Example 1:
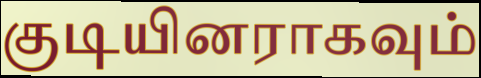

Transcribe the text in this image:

குடியினராகவும்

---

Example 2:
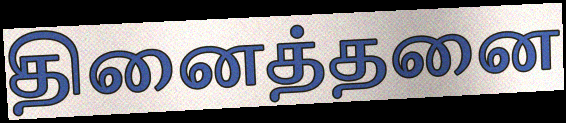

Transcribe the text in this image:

தினைத்தனை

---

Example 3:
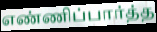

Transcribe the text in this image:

எண்ணிப்பார்த்த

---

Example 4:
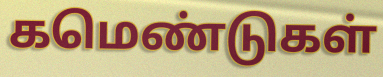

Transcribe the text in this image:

கமெண்டுகள்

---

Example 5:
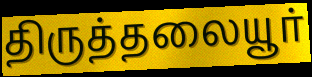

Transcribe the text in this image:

திருத்தலையூர்